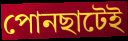
পোনছাটেই